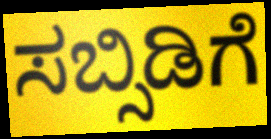
ಸಬ್ಸಿಡಿಗೆ